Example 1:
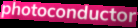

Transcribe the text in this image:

photoconductor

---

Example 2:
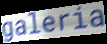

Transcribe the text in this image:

galeria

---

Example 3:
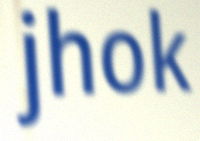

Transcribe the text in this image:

jhok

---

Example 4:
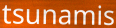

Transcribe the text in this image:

tsunamis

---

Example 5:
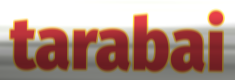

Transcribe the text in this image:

tarabai